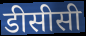
डीसीसी